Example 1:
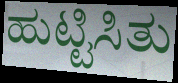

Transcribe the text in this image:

ಹುಟ್ಟಿಸಿತು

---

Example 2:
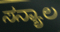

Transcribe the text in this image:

ಸನ್ಯಾಲ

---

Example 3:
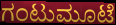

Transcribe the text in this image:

ಗಂಟುಮೂಟೆ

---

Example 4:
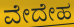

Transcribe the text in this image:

ವೇದೇಹ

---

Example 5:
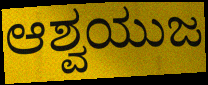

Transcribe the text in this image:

ಆಶ್ವಯುಜ